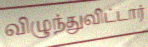
விழுந்துவிட்டார்